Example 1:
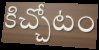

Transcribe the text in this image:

కిచ్చోటం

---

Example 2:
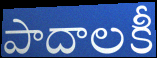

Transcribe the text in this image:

పాదాలకీ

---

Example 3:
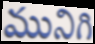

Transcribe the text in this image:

మునిగి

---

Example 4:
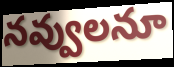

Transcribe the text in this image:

నవ్వులనూ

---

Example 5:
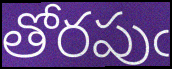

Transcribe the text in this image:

తోరపుఁ